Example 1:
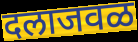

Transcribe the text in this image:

दलाजवळ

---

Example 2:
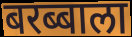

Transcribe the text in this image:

बरब्बाला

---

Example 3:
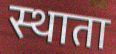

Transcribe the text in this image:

स्थाता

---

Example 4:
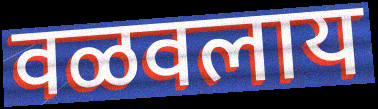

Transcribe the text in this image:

वळवलाय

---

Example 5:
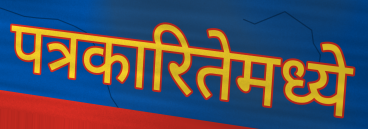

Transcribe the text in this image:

पत्रकारितेमध्ये